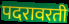
पदरावरती